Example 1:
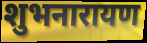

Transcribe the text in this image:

शुभनारायण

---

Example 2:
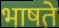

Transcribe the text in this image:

भाषते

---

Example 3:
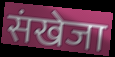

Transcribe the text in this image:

संखेजा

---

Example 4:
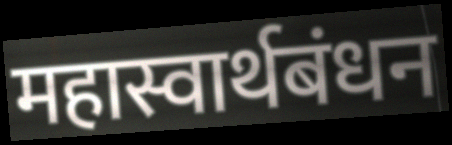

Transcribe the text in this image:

महास्वार्थबंधन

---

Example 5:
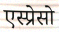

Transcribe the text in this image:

एस्प्रेसो